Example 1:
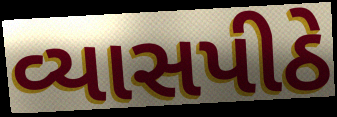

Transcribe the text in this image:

વ્યાસપીઠે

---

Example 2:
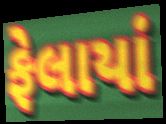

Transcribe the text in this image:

ફેલાયાં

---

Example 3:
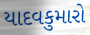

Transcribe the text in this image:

યાદવકુમારો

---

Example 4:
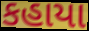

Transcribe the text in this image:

કહાયા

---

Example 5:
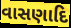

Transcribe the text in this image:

વાસણાદિ